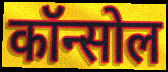
कॉन्सोल